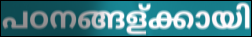
പഠനങ്ങള്ക്കായി